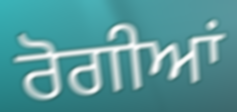
ਰੋਗੀਆਂ